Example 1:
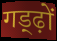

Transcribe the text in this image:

गड्‌ढ़ों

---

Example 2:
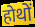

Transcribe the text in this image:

होथों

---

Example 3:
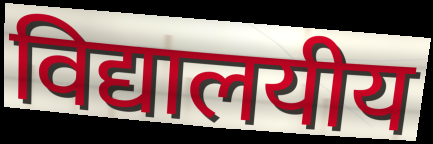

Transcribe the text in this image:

विद्यालयीय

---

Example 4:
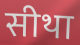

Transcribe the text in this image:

सीथा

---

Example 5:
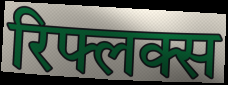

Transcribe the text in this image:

रिफ्लक्स